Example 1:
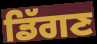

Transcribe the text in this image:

ਡਿੱਗਣ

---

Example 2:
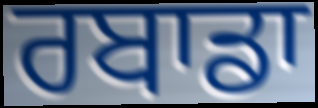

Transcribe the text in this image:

ਰਬਾਡਾ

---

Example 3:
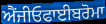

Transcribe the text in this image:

ਐਂਜੀਓਫਾਈਬਰੋਮਾ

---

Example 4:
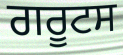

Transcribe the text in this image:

ਗਰੂਟਸ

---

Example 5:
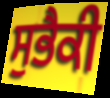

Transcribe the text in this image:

ਸੁਭੈਕੀ